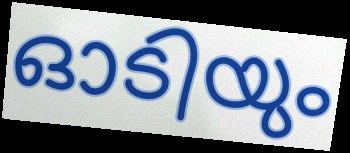
ഓടിയും